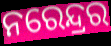
ନରେନ୍ଦ୍ରର